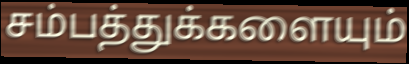
சம்பத்துக்களையும்